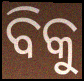
ବିକୁ